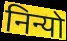
निन्यो